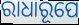
ରାଧାରୂପେ